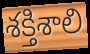
శక్తిశాలి